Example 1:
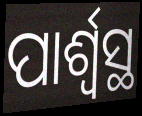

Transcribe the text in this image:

ପାର୍ଶ୍ୱସ୍ଥ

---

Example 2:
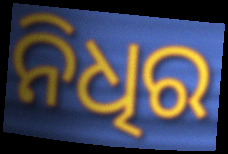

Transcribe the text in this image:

ନିଧିର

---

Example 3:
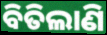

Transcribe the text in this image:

ବିତିଲାଣି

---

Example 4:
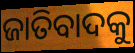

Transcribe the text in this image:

ଜାତିବାଦକୁ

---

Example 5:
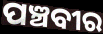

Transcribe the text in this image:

ପଞ୍ଚବୀର